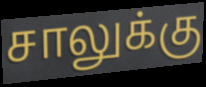
சாலுக்கு